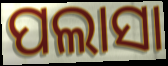
ପଲାସା